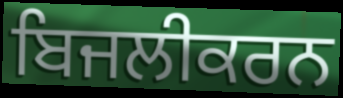
ਬਿਜਲੀਕਰਨ